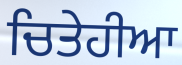
ਚਿਤੇਹੀਆ